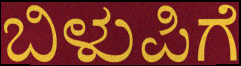
ಬಿಳುಪಿಗೆ